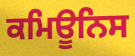
ਕਮਿਊਨਿਸ